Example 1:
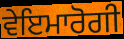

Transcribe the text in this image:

ਵੇਇਮਾਰੋਗੀ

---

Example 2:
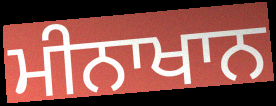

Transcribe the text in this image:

ਮੀਨਾਖਾਨ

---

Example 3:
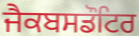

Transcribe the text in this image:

ਜੈਕਬਸਡੌਟਿਰ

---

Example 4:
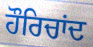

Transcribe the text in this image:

ਹੌਰਿਚਾਂਦ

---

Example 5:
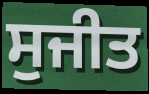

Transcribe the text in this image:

ਸੁਜੀਤ